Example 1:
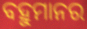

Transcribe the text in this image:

ବହୁମାନର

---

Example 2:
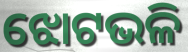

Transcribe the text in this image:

ଝୋଟଭଳି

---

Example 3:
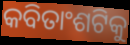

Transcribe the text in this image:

କବିତାଂଶଟିକୁ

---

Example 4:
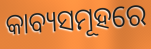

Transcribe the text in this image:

କାବ୍ୟସମୂହରେ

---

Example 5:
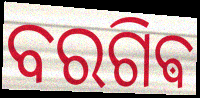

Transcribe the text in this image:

ବରଗିଵ